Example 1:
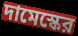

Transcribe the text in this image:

দামেস্কের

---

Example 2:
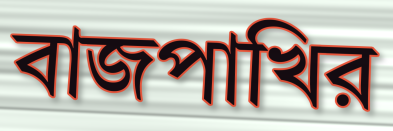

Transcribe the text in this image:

বাজপাখির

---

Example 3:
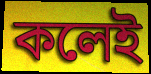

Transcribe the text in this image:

কলেই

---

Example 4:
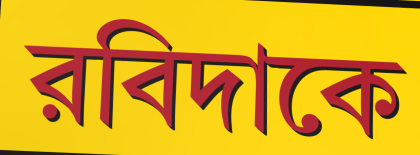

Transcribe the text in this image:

রবিদাকে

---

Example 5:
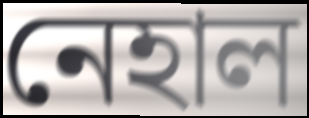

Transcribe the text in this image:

নেহাল